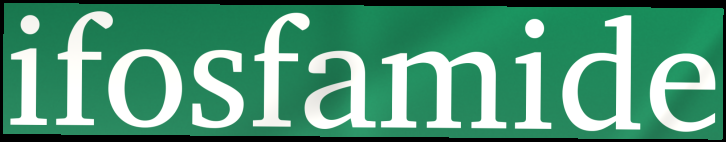
ifosfamide